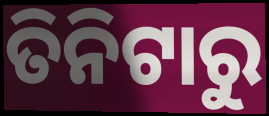
ତିନିଟାରୁ